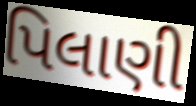
પિલાણી